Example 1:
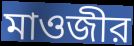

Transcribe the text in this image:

মাওজীর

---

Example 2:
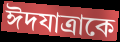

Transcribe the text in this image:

ঈদযাত্রাকে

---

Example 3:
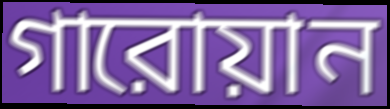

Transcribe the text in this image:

গারোয়ান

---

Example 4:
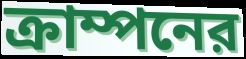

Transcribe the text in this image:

ক্রাম্পনের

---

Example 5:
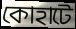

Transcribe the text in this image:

কোহাটে